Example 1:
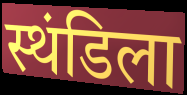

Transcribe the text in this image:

स्थंडिला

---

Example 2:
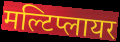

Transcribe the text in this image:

मल्टिप्लायर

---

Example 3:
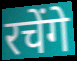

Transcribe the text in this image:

रचेंगे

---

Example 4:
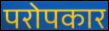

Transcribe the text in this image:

परोपकार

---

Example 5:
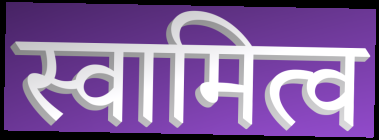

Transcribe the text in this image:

स्वामित्व